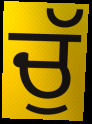
ਚੁੱ